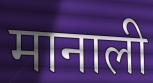
मानाली